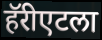
हॅरीएटला